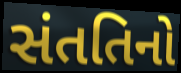
સંતતિનો